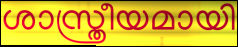
ശാസ്ത്രീയമായി